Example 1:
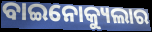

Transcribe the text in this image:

ବାଇନୋକ୍ୟୁଲାର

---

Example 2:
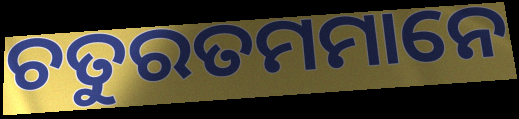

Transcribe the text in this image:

ଚତୁରତମମାନେ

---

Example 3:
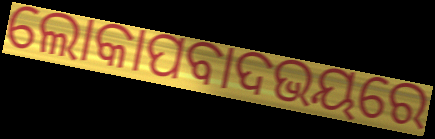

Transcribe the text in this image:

ଲୋକାପବାଦଭୟରେ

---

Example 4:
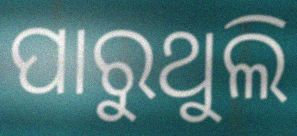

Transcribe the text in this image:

ପାରୁଥୁଲି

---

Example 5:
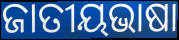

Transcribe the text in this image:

ଜାତୀୟଭାଷା